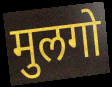
मुलगो